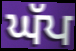
ਘੱਪ